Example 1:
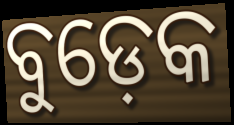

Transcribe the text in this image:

ବୁଡ଼େକ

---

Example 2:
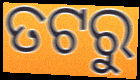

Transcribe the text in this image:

ତଟରୁ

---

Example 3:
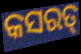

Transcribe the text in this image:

କସରତ୍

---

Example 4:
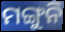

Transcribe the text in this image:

ମଙ୍ଗୁନି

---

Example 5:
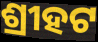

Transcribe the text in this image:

ଶ୍ରୀହଟ